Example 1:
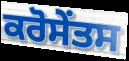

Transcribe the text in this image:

ਕਰੋਸੇਂਤਸ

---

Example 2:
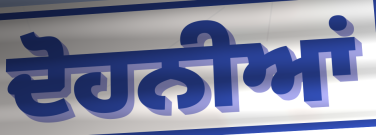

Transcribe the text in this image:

ਦੋਹਨੀਆਂ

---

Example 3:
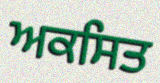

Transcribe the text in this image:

ਅਕਸਿਤ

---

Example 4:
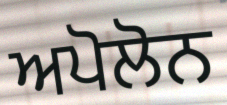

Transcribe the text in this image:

ਅਪੋਲੋਨ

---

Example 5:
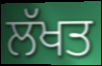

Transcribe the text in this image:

ਲੱਖਤ